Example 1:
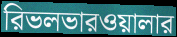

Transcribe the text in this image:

রিভলভারওয়ালার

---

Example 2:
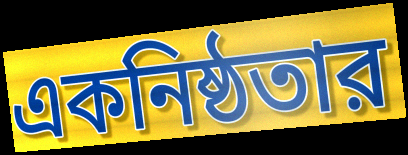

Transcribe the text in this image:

একনিষ্ঠতার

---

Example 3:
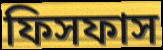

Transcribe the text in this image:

ফিসফাস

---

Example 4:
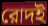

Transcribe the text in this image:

রোদই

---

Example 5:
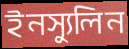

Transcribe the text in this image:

ইনস্যুলিন